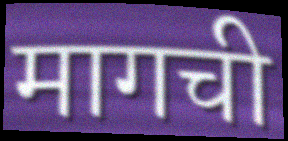
मागची